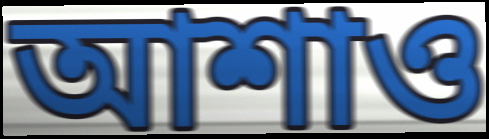
আশাও